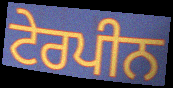
ਟੇਰਪੀਨ